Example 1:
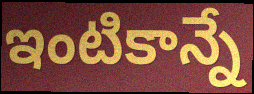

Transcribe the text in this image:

ఇంటికాన్నే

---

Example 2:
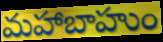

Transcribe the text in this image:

మహాబాహుం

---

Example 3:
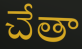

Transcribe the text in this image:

చేతా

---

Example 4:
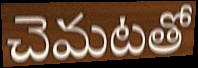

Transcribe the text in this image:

చెమటతో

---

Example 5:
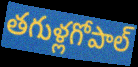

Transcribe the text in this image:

తగుళ్లగోపాల్